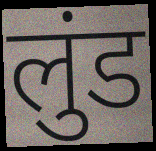
लुंड